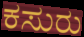
ಕಸುರು